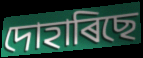
দোহাৰিছে